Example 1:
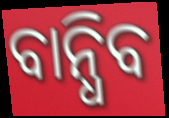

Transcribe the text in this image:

ବାନ୍ଧିବ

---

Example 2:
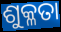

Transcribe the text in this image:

ଶୁକ୍ଳତା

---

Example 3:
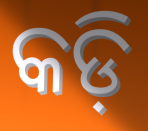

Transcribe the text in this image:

କଡ଼ି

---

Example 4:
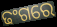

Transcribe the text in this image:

ଢଂଗରେ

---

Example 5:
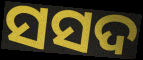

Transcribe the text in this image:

ସସଦ